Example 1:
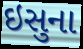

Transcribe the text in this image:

ઇસુના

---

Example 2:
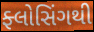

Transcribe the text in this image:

ફ્લોસિંગથી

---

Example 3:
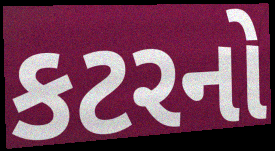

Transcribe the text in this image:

કટરનો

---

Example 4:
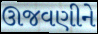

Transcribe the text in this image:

ઊજવણીને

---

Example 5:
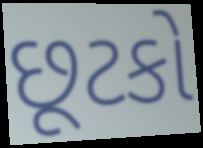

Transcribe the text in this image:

છૂટકો